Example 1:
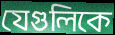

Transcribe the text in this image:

যেগুলিকে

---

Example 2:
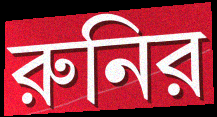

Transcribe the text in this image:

রুনির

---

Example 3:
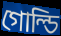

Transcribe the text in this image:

গোল্ডি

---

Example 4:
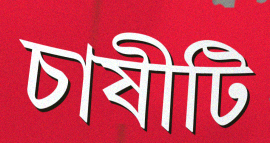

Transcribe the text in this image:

চাষীটি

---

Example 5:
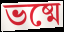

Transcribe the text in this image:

ভষ্মে